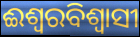
ଈଶ୍ବରବିଶ୍ବାସୀ